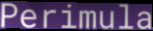
Perimula